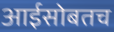
आईसोबतच